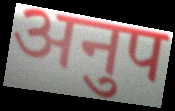
अनुप